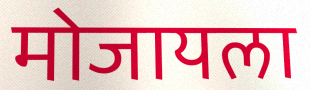
मोजायला